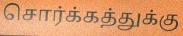
சொர்க்கத்துக்கு